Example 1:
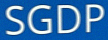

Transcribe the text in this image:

SGDP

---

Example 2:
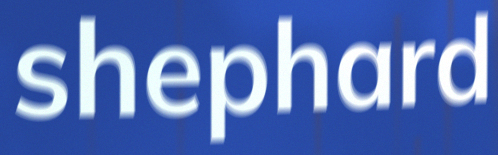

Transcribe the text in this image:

shephard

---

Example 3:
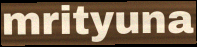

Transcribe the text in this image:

mrityuna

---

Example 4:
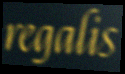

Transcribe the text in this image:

regalis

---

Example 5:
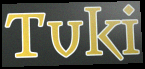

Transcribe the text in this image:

Tuki